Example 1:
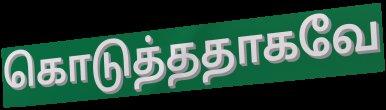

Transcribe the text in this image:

கொடுத்ததாகவே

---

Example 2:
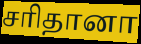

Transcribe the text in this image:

சரிதானா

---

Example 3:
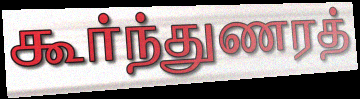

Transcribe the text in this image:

கூர்ந்துணரத்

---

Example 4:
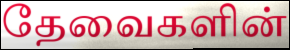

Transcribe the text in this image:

தேவைகளின்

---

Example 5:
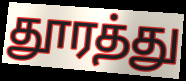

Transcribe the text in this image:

தூரத்து